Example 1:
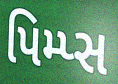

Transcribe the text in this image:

પિમ્પ્સ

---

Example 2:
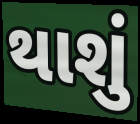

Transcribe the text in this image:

થાશું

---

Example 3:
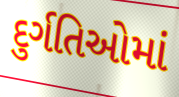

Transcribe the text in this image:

દુર્ગતિઓમાં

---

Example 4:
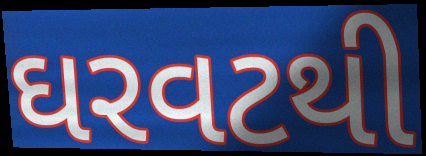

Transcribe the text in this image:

ઘરવટથી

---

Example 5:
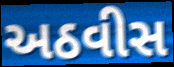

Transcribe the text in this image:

અઠવીસ